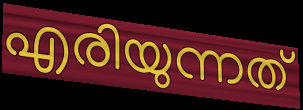
എരിയുന്നത്